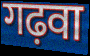
गढ़वा